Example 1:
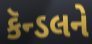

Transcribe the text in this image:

કૅન્ડલને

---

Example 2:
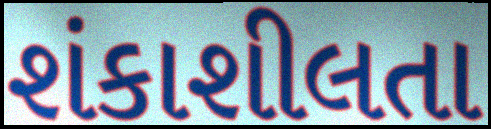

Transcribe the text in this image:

શંકાશીલતા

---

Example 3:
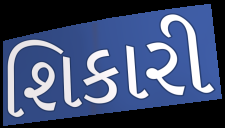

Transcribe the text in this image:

શિકારી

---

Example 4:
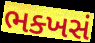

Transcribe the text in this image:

ભક્ખસં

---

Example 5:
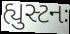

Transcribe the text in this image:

હ્યુસ્ટનઃ